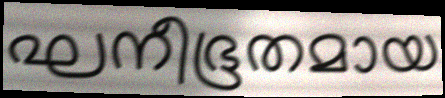
ഘനീഭൂതമായ